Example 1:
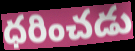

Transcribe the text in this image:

ధరించడు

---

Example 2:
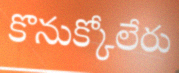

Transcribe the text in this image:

కొనుక్కోలేరు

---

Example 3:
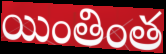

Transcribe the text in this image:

యింతింత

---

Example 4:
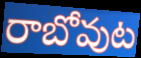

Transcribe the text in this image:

రాబోవుట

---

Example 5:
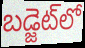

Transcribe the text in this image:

బడ్జెట్‌లో